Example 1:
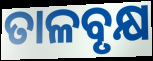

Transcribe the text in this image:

ତାଳବୃକ୍ଷ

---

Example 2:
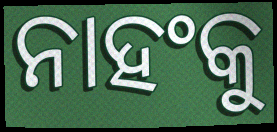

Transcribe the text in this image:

ନାହଂକୁ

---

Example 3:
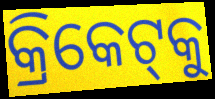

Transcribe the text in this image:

କ୍ରିକେଟ୍‌କୁ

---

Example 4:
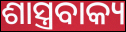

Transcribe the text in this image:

ଶାସ୍ତ୍ରବାକ୍ୟ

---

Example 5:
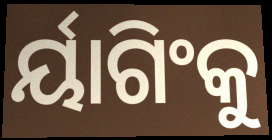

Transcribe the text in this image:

ର୍ୟାଗିଂକୁ